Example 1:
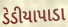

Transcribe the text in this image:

ડેડીયાપાડા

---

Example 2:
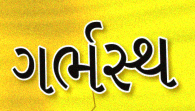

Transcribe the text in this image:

ગર્ભસ્થ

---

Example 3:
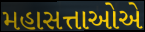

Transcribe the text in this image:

મહાસત્તાઓએ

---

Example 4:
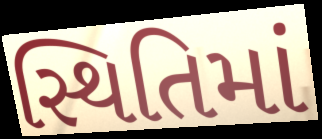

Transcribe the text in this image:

સ્થિતિમાં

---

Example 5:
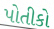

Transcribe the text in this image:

પોતીકો